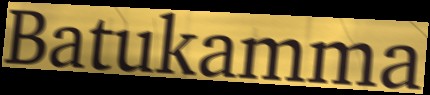
Batukamma